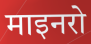
माइनरो